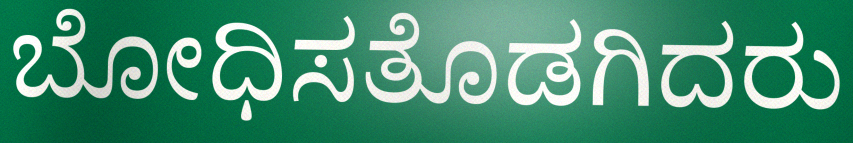
ಬೋಧಿಸತೊಡಗಿದರು